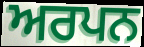
ਅਰਪਨ